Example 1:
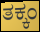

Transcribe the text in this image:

ತಕ್ಕಂ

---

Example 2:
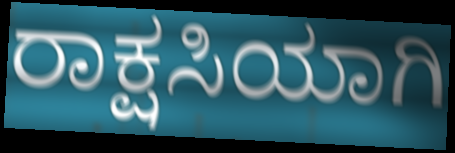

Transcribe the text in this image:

ರಾಕ್ಷಸಿಯಾಗಿ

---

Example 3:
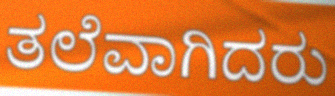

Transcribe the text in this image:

ತಲೆವಾಗಿದರು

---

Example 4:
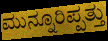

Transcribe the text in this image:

ಮುನ್ನೂರಿಪ್ಪತ್ತು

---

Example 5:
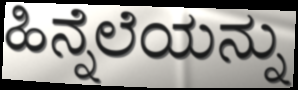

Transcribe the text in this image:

ಹಿನ್ನೆಲೆಯನ್ನು